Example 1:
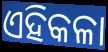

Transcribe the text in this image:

ଏହିକଳା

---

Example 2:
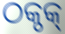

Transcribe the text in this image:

ଠକ୍ଠକ୍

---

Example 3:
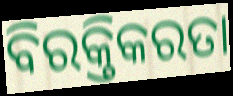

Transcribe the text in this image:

ବିରକ୍ତିକରତା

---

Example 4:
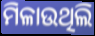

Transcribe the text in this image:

ମିଳାଉଥିଲି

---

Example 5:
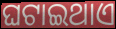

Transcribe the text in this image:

ଘଟାଇଥାଏ